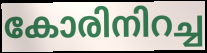
കോരിനിറച്ച